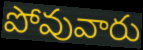
పోవువారు